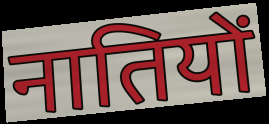
नातियों